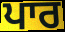
ਪਾਰ